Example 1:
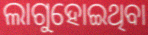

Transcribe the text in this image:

ଲାଗୁହୋଇଥିବା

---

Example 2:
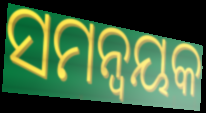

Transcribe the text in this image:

ସମନ୍ୱୟକ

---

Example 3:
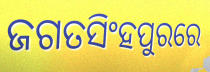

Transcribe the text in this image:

ଜଗତସିଂହପୁରରେ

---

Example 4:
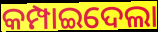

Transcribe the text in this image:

କମ୍ପାଇଦେଲା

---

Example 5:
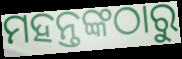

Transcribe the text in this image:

ମହନ୍ତଙ୍କଠାରୁ